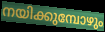
നയിക്കുമ്പോഴും